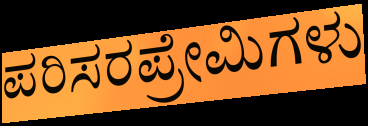
ಪರಿಸರಪ್ರೇಮಿಗಳು